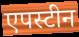
एपस्टीन